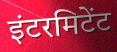
इंटरमिटेंट